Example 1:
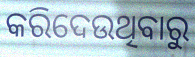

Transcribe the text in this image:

କରିଦେଉଥିବାରୁ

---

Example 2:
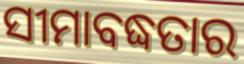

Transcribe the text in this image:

ସୀମାବଦ୍ଧତାର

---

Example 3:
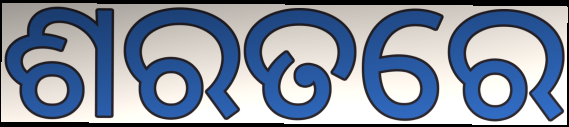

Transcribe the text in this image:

ଶରତରେ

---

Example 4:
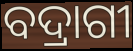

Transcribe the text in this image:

ବଦ୍ରାଗୀ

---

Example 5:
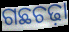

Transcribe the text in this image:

ଗଛଚଢ଼ା